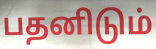
பதனிடும்